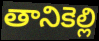
తానికెల్లి